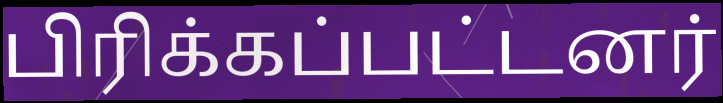
பிரிக்கப்பட்டனர்